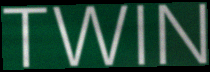
TWIN